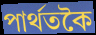
পাৰ্থতকৈ